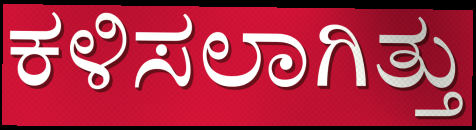
ಕಳಿಸಲಾಗಿತ್ತು